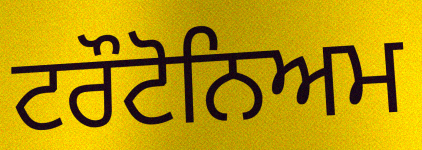
ਟਰੌਟੋਨਿਅਮ